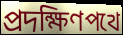
প্রদক্ষিণপথে